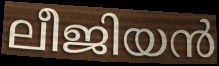
ലീജിയൻ